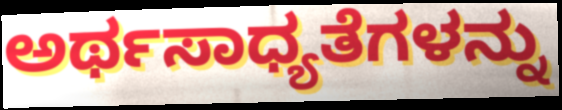
ಅರ್ಥಸಾಧ್ಯತೆಗಳನ್ನು